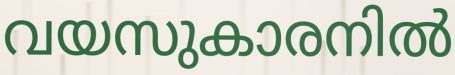
വയസുകാരനിൽ